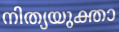
നിത്യയുക്താ